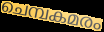
ചെമ്പകമരം